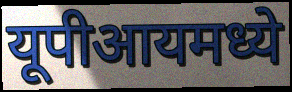
यूपीआयमध्ये